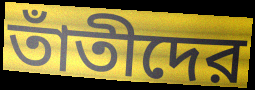
তাঁতীদের